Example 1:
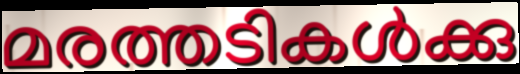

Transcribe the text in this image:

മരത്തടികൾക്കു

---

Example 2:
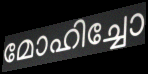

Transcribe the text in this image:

മോഹിച്ചോ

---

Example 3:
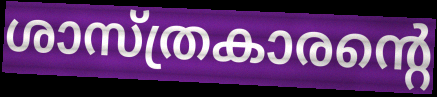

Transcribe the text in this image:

ശാസ്ത്രകാരന്റെ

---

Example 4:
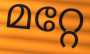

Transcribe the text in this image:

മറ്റേ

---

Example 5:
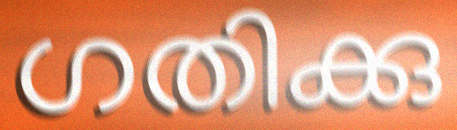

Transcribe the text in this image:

ഗതിക്കു